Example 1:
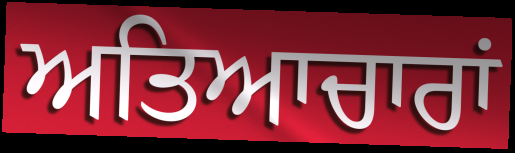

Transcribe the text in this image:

ਅਤਿਆਚਾਰਾਂ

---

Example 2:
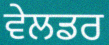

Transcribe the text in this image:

ਵੇਲਡਰ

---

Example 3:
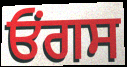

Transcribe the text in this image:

ਓਂਗਸ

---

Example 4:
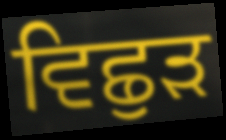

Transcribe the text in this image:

ਵਿਛੁੜ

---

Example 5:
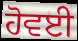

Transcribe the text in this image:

ਹੋਵਈ